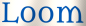
Loom